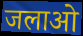
जलाओ